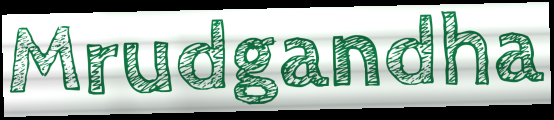
Mrudgandha